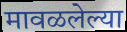
मावळलेल्या